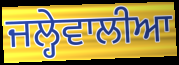
ਜਲ੍ਹੇਵਾਲੀਆ